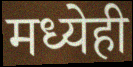
मध्येही